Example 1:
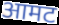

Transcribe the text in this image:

आमट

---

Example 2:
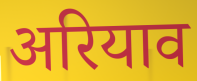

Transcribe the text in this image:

अरियाव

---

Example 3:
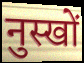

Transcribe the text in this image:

नुस्खों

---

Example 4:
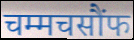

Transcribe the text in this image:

चम्मचसौंफ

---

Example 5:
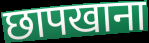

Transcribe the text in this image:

छापखाना